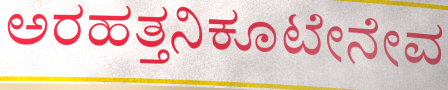
ಅರಹತ್ತನಿಕೂಟೇನೇವ